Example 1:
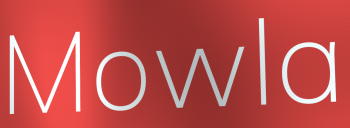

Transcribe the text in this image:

Mowla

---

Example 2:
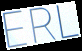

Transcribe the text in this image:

ERL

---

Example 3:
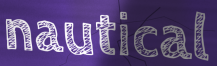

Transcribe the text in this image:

nautical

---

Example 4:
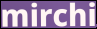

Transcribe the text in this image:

mirchi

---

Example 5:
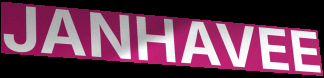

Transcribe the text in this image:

JANHAVEE